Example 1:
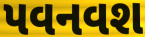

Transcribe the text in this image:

પવનવશ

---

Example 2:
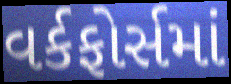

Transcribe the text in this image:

વર્કફોર્સમાં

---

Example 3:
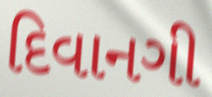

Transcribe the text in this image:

દિવાનગી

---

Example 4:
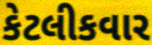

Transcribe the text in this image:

કેટલીકવાર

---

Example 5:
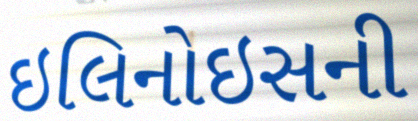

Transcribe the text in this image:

ઇલિનોઇસની